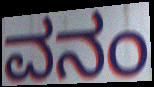
ವನಂ